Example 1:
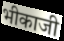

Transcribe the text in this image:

भीकाजी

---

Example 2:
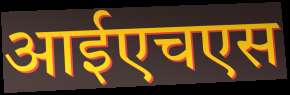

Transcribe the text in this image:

आईएचएस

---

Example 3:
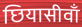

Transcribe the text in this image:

छियासीवाँ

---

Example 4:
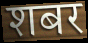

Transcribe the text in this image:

शबर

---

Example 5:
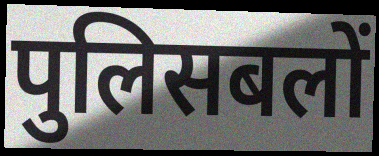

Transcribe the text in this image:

पुलिसबलों